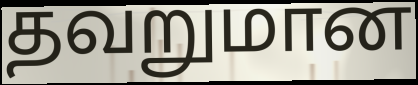
தவறுமான